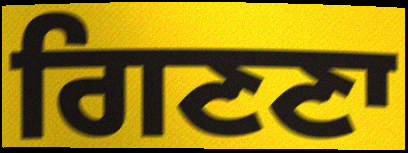
ਗਿਣਣਾ